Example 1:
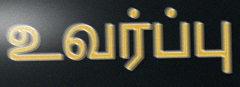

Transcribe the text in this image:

உவர்ப்பு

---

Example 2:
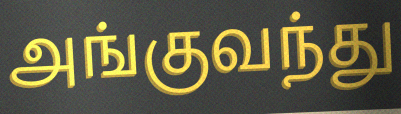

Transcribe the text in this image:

அங்குவந்து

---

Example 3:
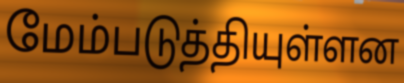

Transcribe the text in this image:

மேம்படுத்தியுள்ளன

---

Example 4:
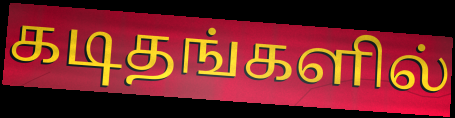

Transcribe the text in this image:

கடிதங்களில்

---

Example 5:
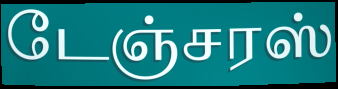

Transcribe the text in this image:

டேஞ்சரஸ்